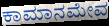
ಕಾಮಾನಮೇವ